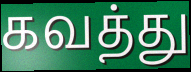
கவத்து